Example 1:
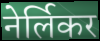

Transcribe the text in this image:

नेर्लिकर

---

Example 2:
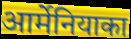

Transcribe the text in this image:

आर्मेनियाका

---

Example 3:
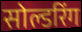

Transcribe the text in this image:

सोल्डरिंग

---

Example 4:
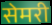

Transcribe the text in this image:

सेमरी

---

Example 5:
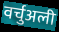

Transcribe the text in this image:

वर्चुअली